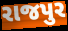
રાજપુર